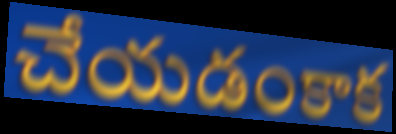
చేయడంకాక